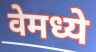
वेमध्ये